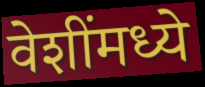
वेशींमध्ये